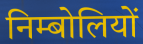
निम्बोलियों